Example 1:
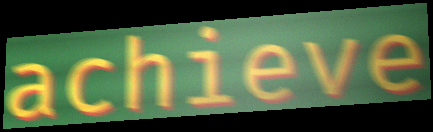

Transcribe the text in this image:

achieve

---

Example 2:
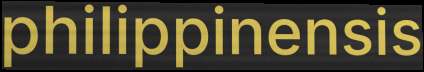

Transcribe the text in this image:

philippinensis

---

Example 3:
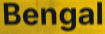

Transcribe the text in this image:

Bengal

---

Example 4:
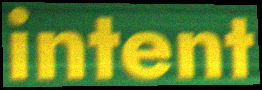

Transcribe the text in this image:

intent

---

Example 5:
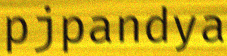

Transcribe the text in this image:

pjpandya